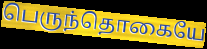
பெருந்தொகையே